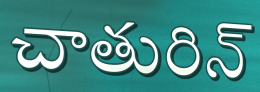
చాతురిన్